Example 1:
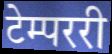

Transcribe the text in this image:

टेम्पररी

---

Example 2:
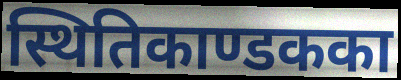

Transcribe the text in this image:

स्थितिकाण्डकका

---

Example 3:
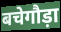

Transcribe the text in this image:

बचेगौड़ा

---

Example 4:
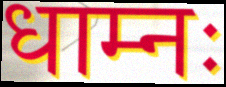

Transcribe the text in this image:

धाम्नः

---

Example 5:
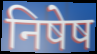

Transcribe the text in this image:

निषेष